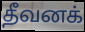
தீவனக்